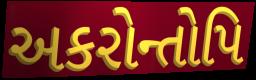
અકરોન્તોપિ